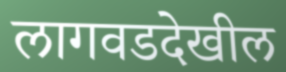
लागवडदेखील